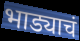
भाड्याचं